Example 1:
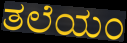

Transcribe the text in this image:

ತಲೆಯಂ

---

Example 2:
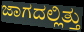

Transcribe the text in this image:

ಜಾಗದಲ್ಲಿತ್ತು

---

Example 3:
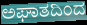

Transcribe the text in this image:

ಅಘಾತದಿಂದ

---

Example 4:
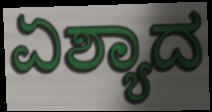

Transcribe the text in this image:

ಏಶ್ಯಾದ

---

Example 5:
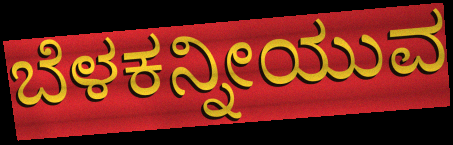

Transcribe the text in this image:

ಬೆಳಕನ್ನೀಯುವ